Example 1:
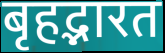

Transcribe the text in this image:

बृहद्भारत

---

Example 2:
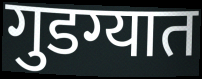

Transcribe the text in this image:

गुडग्यात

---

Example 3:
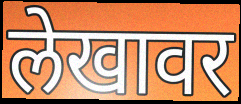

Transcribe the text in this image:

लेखावर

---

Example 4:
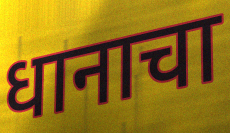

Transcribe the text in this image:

धानाचा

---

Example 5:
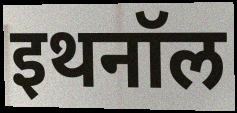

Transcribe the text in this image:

इथनॉल